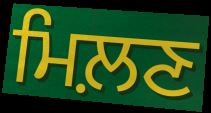
ਮਿਲ਼ਣ